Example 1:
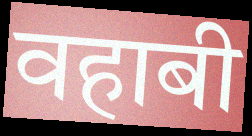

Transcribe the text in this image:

वहाबी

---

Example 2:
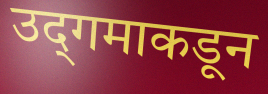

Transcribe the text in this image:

उद्‌गमाकडून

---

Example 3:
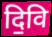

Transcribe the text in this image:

दि॒वि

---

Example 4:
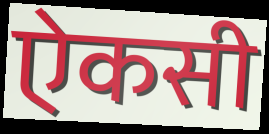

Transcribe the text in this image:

ऐकसी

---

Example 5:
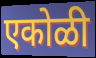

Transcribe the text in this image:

एकोळी